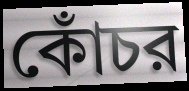
কোঁচর